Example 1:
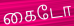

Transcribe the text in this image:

கைடோ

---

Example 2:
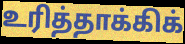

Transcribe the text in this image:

உரித்தாக்கிக்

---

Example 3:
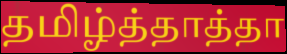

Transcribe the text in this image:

தமிழ்த்தாத்தா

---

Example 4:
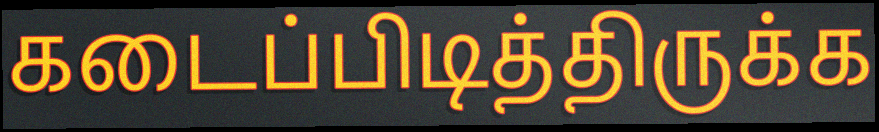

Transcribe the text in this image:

கடைப்பிடித்திருக்க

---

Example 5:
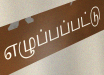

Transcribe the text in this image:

எழுப்பப்பட்டு